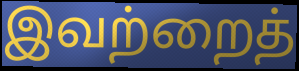
இவற்றைத்